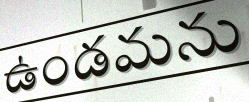
ఉండమను